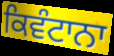
ਕਿਵੰਟਾਨਾ